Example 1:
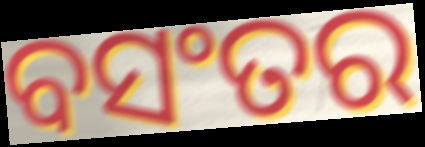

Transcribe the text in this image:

ବସଂତର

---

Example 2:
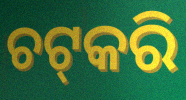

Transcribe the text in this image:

ଚଟ୍‌କରି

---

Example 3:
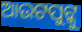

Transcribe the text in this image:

ଆଉଟପୁଟ୍କୁ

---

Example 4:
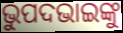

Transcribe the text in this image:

ଭୁପଦଭାଇଙ୍କୁ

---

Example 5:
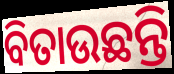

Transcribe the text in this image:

ବିତାଉଛନ୍ତି